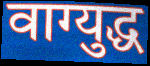
वाग्युद्ध